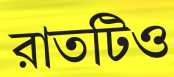
রাতটিও